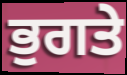
ਭੁਗਤੇ